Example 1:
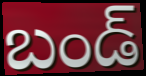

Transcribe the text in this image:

బండ్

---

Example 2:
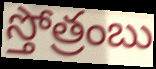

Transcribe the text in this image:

స్తోత్రంబు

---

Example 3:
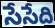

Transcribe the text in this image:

సేసేది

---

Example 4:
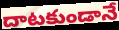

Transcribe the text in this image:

దాటకుండానే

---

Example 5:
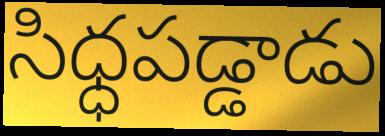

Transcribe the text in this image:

సిధ్ధపడ్డాడు